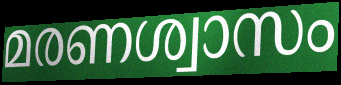
മരണശ്വാസം